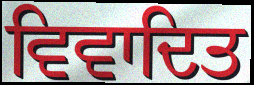
ਵਿਵਾਦਿਤ